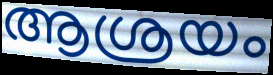
ആശ്രയം